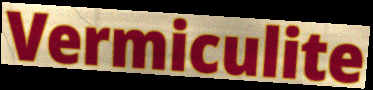
Vermiculite